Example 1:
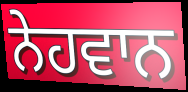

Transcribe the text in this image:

ਨੇਹਵਾਨ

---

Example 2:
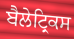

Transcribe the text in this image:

ਬੈਲੇਟ੍ਰਿਕਸ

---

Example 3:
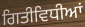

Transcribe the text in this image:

ਗਿਤੀਵਿਧੀਆਂ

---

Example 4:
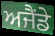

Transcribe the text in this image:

ਅਜੈਂਡੇ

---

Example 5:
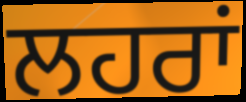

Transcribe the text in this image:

ਲਹਰਾਂ